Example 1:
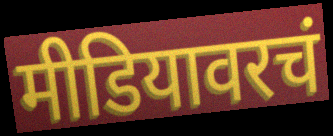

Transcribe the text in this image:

मीडियावरचं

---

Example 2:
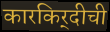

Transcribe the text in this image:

कारकिर्दीची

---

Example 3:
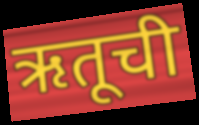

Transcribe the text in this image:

ॠतूची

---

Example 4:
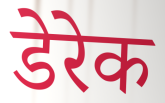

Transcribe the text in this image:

डेरेक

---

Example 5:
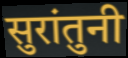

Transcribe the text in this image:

सुरांतुनी